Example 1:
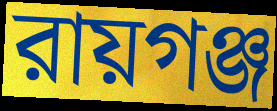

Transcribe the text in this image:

রায়গঞ্জ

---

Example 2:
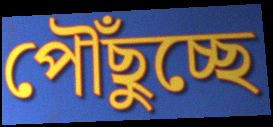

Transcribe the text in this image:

পৌঁছুচ্ছে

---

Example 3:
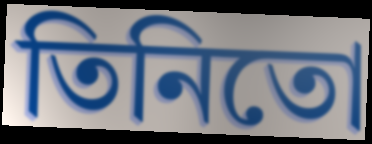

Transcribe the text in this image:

তিনিতো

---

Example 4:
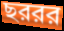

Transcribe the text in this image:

ছররর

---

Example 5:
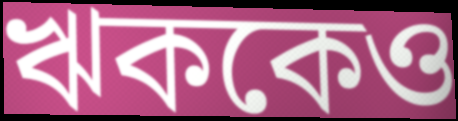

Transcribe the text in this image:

ঋককেও